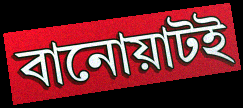
বানোয়াটই